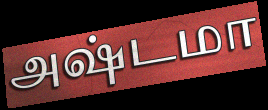
அஷ்டமா